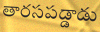
తారసపడ్డాడు